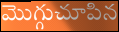
మొగ్గుచూపిన